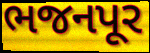
ભજનપૂર